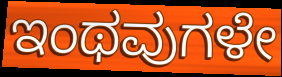
ಇಂಥವುಗಳೇ